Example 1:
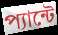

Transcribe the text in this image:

প্যান্টে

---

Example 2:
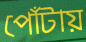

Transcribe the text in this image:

পোঁটায়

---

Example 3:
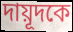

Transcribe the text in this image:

দায়ূদকে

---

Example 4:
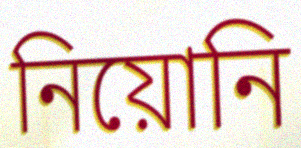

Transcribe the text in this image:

নিয়োনি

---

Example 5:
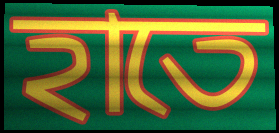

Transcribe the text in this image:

হাতে